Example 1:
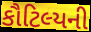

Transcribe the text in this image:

કૌટિલ્યની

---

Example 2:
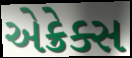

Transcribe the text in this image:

એક્રેક્સ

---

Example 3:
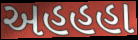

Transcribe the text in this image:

અહહહા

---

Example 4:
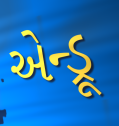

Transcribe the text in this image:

એન્ડ્રૂ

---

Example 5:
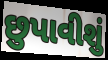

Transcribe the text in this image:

છુપાવીશું